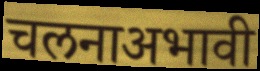
चलनाअभावी